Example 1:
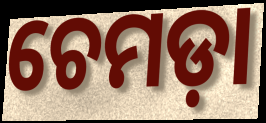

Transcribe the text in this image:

ଚେମଡ଼ା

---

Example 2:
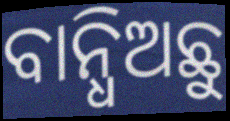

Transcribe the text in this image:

ବାନ୍ଧିଅଛୁ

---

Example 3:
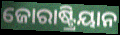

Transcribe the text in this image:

ଜୋରାଷ୍ଟ୍ରିୟାନ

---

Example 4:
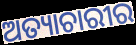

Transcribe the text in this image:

ଅତ୍ୟାଚାରୀର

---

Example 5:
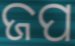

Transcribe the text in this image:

ଜପ